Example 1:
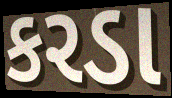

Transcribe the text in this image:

કરડા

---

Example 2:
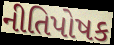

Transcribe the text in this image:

નીતિપોષક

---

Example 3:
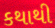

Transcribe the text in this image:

કથાથી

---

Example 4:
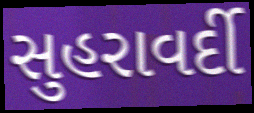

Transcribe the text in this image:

સુહરાવર્દી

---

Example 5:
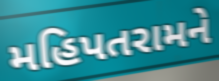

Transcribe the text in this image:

મહિપતરામને